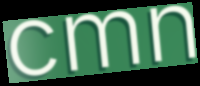
cmn